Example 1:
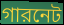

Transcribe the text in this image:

গারনেট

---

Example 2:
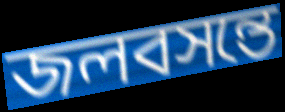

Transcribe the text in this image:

জলবসন্তে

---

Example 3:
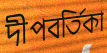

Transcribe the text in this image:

দীপবর্তিকা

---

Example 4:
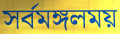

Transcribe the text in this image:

সর্বমঙ্গলময়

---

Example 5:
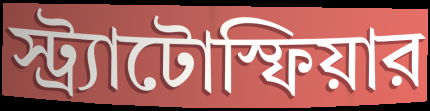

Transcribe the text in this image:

স্ট্র্যাটোস্ফিয়ার